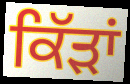
ਕਿੱੜਾਂ